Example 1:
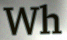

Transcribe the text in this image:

Wh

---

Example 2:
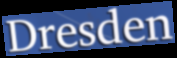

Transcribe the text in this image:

Dresden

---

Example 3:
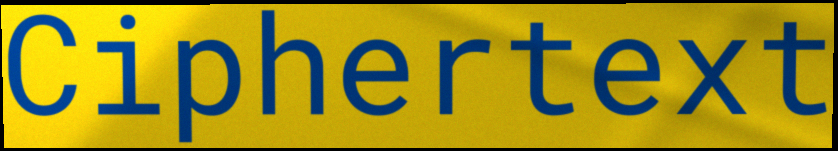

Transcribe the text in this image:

Ciphertext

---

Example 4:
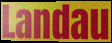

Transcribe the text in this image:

Landau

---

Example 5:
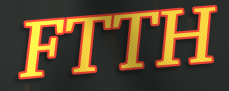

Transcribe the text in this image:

FTTH